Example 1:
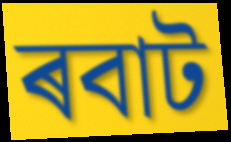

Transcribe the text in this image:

ৰবাট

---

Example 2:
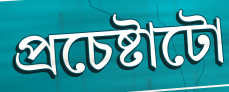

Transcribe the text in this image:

প্ৰচেষ্টাটো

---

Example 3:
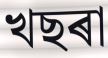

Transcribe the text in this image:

খছৰা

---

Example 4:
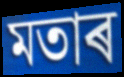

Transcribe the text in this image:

মতাৰ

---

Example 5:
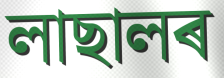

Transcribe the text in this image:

লাছালৰ